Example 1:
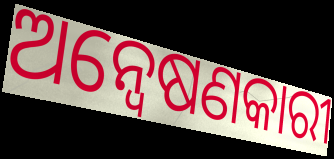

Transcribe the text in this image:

ଅନ୍ୱେଷଣକାରୀ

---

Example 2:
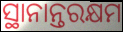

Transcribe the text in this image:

ସ୍ଥାନାନ୍ତରକ୍ଷମ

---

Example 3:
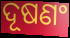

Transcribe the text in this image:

ଦୂଷଣଂ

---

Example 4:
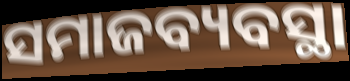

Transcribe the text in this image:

ସମାଜବ୍ୟବସ୍ଥା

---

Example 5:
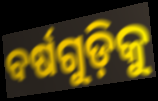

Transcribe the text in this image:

ବର୍ଷଗୁଡ଼ିକୁ